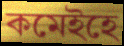
কমেইহে